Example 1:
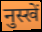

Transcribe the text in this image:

नुस्खें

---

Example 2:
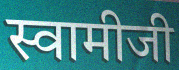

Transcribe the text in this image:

स्‍वामीजी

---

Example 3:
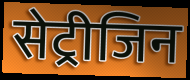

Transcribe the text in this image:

सेट्रीजिन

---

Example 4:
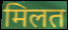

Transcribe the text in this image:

मिलत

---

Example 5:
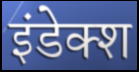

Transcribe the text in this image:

इंडेक्श